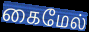
கைமேல்